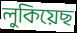
লুকিয়েছ